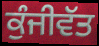
ਕੁੰਜੀਵੱਤ